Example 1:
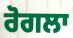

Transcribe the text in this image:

ਰੋਗਲਾ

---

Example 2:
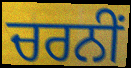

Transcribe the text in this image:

ਚਰਨੀਂ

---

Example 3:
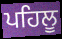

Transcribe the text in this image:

ਪਹਿਲੂ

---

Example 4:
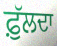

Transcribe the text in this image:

ਫ਼ੁੱਲਦਾ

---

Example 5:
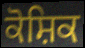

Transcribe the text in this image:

ਕੋਸ਼ਿਕ